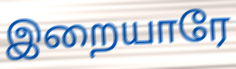
இறையாரே